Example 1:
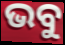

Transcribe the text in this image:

ଭବୁ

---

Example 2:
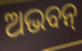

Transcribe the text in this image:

ଅଭବନ୍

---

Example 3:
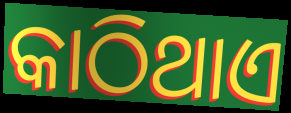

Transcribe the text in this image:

କାଠିଥାଏ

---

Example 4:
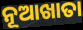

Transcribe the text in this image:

ନୂଆଖାତା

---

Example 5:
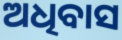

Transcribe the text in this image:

ଅଧିବାସ